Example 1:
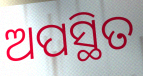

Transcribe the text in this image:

ଅପସ୍ଥିତ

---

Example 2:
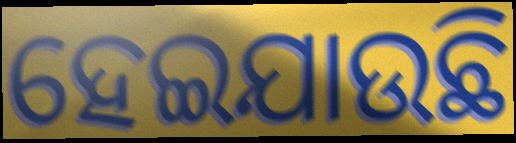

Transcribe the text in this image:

ହେଇଯାଉଛି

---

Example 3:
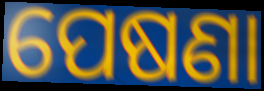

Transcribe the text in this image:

ପେଷଣା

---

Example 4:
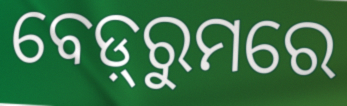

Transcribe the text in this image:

ବେଡ଼୍‌ରୁମରେ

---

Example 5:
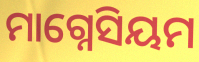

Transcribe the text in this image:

ମାଗ୍ନେସିୟମ